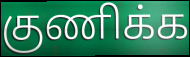
குணிக்க